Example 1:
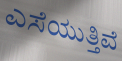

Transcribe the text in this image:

ಎಸೆಯುತ್ತಿವೆ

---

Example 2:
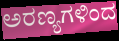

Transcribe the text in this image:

ಅರಣ್ಯಗಳಿಂದ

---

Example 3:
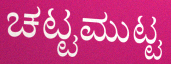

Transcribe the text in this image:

ಚಟ್ಟಮುಟ್ಟ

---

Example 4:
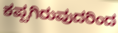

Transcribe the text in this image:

ಕಪ್ಪಗಿರುವುದರಿಂದ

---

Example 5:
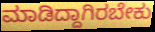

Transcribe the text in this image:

ಮಾಡಿದ್ದಾಗಿರಬೇಕು